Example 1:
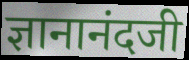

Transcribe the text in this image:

ज्ञानानंदजी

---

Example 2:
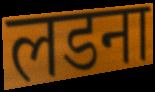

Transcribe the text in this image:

लडना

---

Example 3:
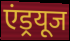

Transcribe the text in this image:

एंड्रयूज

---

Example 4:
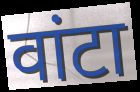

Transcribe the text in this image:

वांटा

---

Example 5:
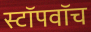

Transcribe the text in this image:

स्टॉपवॉच